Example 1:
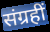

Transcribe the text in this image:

संग्रहीं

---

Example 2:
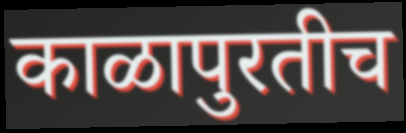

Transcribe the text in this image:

काळापुरतीच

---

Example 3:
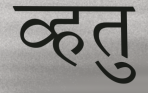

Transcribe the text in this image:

व्हतु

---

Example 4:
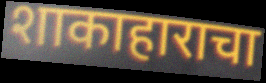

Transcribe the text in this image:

शाकाहाराचा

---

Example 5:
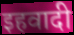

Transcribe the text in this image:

इहवादी